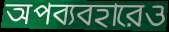
অপব্যবহারেও